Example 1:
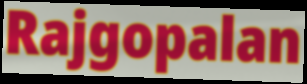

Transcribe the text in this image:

Rajgopalan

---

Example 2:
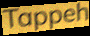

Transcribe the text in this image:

Tappeh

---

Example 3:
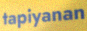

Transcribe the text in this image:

tapiyanan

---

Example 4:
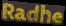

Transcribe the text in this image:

Radhe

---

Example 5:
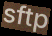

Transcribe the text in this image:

sftp